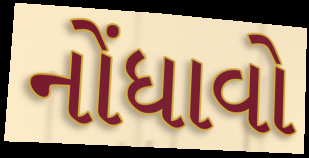
નોંધાવો